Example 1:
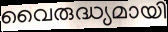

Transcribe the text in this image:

വൈരുദ്ധ്യമായി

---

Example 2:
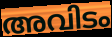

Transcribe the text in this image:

അവിടം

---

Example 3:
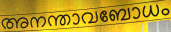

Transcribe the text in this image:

അനന്താവബോധം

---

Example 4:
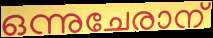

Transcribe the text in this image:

ഒന്നുചേരാന്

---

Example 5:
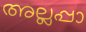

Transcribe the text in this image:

അല്ലപ്പാ